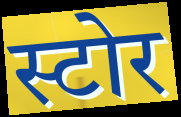
स्टोर